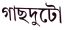
গাছদুটো